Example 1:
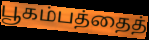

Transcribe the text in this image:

பூகம்பத்தைத்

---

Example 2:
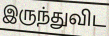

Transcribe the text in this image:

இருந்துவிட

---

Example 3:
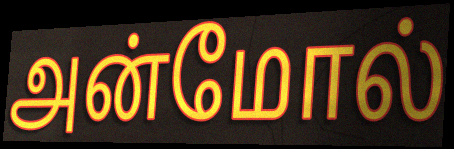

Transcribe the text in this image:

அன்மோல்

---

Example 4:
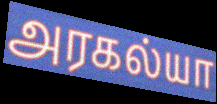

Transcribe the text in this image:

அரகல்யா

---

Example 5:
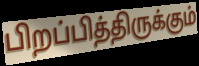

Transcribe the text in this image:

பிறப்பித்திருக்கும்